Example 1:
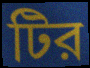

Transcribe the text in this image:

টির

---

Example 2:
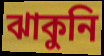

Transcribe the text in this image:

ঝাকুনি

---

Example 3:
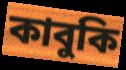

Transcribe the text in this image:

কাবুকি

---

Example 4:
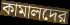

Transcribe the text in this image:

কামালদের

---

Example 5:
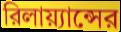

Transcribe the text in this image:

রিলায়্যান্সের